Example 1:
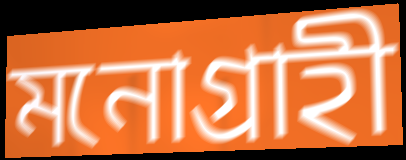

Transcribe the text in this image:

মনোগ্ৰাহী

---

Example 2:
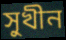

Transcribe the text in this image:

সুখীন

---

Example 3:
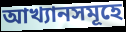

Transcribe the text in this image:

আখ্যানসমূহে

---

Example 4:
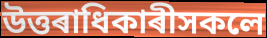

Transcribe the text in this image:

উত্তৰাধিকাৰীসকলে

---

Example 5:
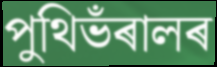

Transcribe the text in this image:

পুথিভঁৰালৰ